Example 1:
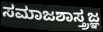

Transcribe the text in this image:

ಸಮಾಜಶಾಸ್ತ್ರಜ್ಞ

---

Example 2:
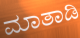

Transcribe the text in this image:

ಮಾತಾಡಿ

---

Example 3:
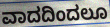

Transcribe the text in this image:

ವಾದದಿಂದಲೂ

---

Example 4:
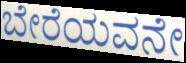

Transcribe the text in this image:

ಬೇರೆಯವನೇ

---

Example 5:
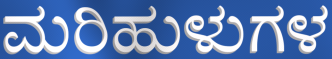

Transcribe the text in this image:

ಮರಿಹುಳುಗಳ